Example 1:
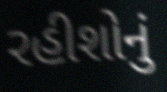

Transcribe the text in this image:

રહીશોનું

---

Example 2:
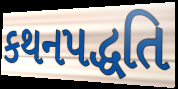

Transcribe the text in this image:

કથનપદ્ધતિ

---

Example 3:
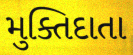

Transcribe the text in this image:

મુક્તિદાતા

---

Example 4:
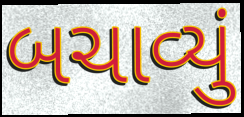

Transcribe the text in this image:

બચાવ્યું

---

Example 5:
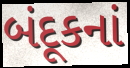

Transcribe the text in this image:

બંદૂકનાં